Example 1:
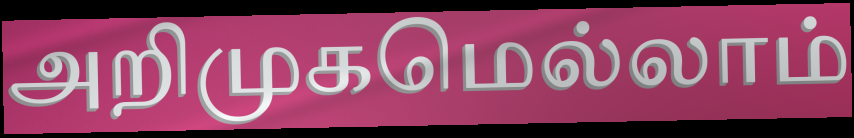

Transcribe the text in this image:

அறிமுகமெல்லாம்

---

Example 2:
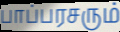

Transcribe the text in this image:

பாப்பரசரும்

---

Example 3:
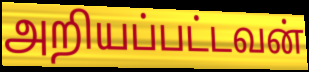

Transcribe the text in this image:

அறியப்பட்டவன்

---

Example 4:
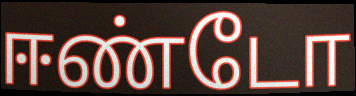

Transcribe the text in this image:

ஈண்டோ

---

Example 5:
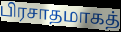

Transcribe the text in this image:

பிரசாதமாகத்